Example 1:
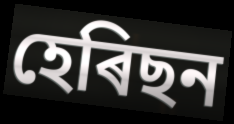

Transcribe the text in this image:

হেৰিছন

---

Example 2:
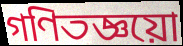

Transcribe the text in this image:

গণিতজ্ঞয়ো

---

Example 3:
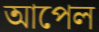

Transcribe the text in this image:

আপেল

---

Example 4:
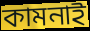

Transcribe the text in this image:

কামনাই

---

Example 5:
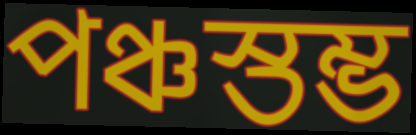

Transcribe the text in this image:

পঞ্চস্তম্ভ